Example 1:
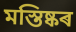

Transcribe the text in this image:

মস্তিষ্কৰ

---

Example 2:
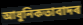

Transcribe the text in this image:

আধুনিকতাবাদৰ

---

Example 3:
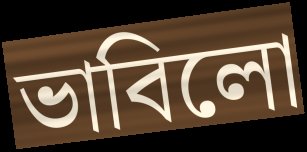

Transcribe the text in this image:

ভাবিলো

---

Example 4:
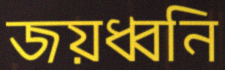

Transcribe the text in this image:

জয়ধ্বনি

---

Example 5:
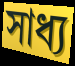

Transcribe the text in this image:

সাধ্য